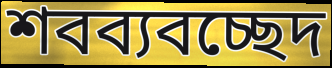
শবব্যবচ্ছেদ